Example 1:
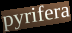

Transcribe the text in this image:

pyrifera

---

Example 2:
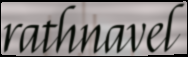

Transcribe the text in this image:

rathnavel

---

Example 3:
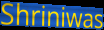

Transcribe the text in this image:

Shriniwas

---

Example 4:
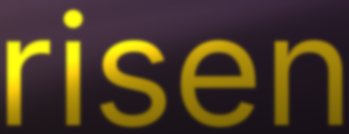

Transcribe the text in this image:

risen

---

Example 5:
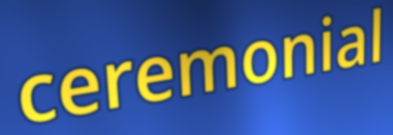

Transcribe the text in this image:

ceremonial